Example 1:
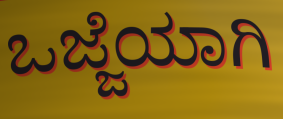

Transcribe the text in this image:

ಒಜ್ಜೆಯಾಗಿ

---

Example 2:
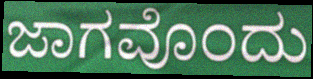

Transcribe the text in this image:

ಜಾಗವೊಂದು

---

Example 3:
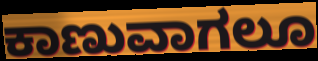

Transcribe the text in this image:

ಕಾಣುವಾಗಲೂ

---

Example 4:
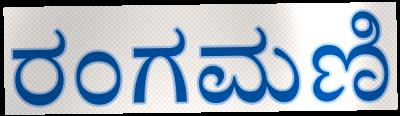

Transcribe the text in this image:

ರಂಗಮಣಿ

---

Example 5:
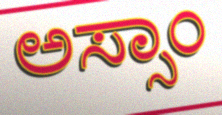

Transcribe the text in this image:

ಅಸ್ಸಾಂ